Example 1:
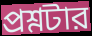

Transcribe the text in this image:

প্রশ্নটার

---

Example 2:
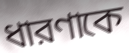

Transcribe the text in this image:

ধারণাকে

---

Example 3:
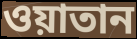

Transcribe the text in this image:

ওয়াতান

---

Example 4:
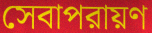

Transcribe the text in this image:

সেবাপরায়ণ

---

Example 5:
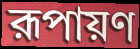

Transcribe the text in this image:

রূপায়ণ